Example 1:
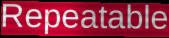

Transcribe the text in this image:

Repeatable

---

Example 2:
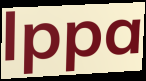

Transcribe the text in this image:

Ippa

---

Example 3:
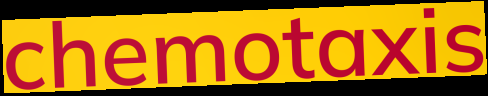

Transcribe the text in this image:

chemotaxis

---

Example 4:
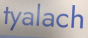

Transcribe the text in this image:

tyalach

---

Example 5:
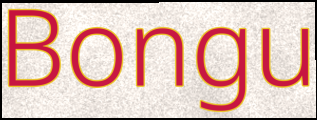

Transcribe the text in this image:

Bongu